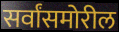
सर्वांसमोरील